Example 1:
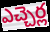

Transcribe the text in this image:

ఎచ్చెర్ల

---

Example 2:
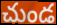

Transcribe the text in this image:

చుండ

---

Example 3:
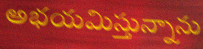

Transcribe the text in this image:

అభయమిస్తున్నాను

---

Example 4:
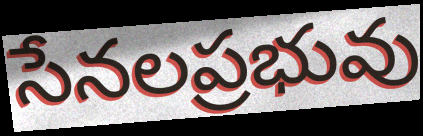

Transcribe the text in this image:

సేనలప్రభువు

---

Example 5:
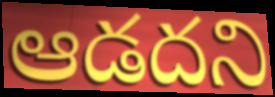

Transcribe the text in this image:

ఆడదని